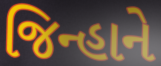
જિન્હાને